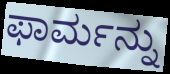
ಫಾರ್ಮನ್ನು